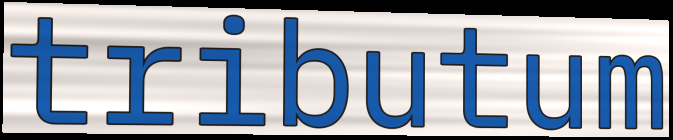
tributum